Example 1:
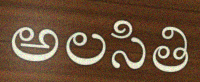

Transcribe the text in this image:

అలసితి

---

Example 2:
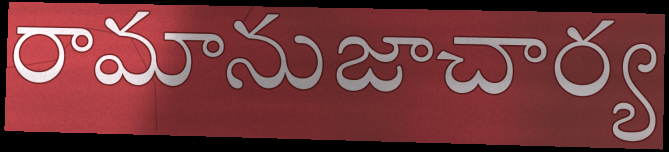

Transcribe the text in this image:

రామానుజాచార్య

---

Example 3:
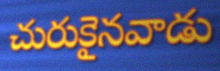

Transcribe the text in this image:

చురుకైనవాడు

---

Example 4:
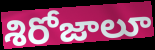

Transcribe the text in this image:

శిరోజాలూ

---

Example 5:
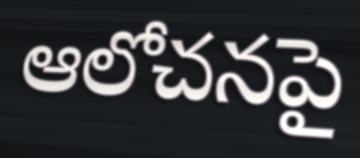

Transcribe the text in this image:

ఆలోచనపై